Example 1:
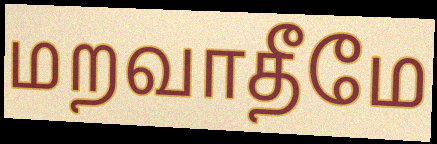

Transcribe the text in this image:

மறவாதீமே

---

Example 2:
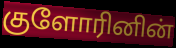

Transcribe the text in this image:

குளோரினின்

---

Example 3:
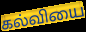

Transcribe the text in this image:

கல்வியை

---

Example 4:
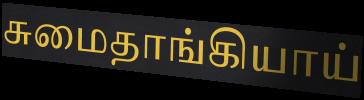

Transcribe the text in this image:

சுமைதாங்கியாய்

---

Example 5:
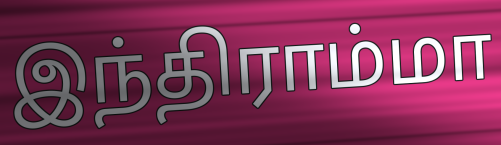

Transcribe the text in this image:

இந்திராம்மா